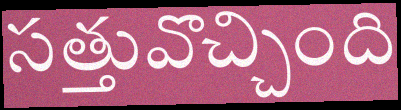
సత్తువొచ్చింది